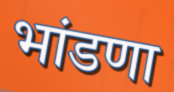
भांडणा